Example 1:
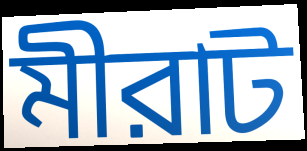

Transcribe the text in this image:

মীরাট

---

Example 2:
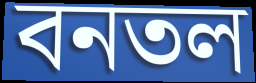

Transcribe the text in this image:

বনতল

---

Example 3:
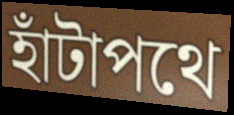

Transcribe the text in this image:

হাঁটাপথে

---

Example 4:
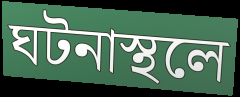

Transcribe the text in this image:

ঘটনাস্থলে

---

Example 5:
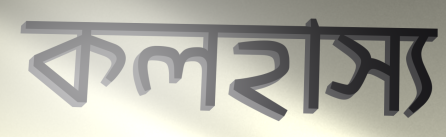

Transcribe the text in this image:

কলহাস্য